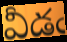
వీడఁ